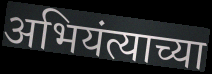
अभियंत्याच्या